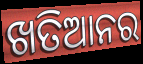
ଖତିଆନର